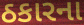
ઠકારના